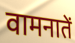
वामनातें